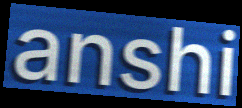
anshi